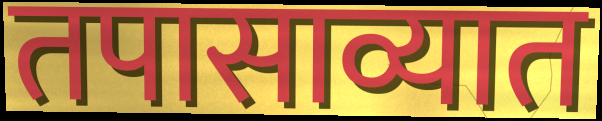
तपासाव्यात